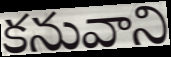
కనువాని